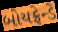
બોયફ્રેન્ડે